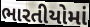
ભારતીયોમાં